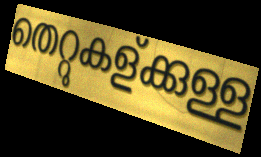
തെറ്റുകള്ക്കുള്ള